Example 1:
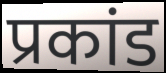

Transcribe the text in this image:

प्रकांड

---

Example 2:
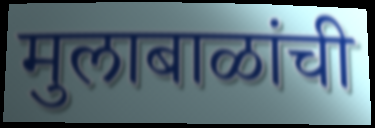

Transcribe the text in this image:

मुलाबाळांची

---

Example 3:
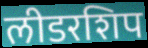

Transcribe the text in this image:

लीडरशिप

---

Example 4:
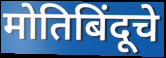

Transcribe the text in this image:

मोतिबिंदूचे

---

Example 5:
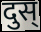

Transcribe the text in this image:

दुस्